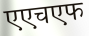
एएचएफ